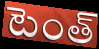
టెంత్